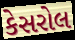
કેસરોલ